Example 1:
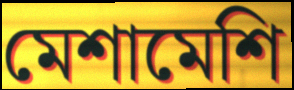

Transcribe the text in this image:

মেশামেশি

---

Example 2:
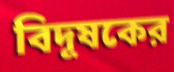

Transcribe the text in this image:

বিদূষকের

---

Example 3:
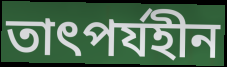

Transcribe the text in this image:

তাৎপর্যহীন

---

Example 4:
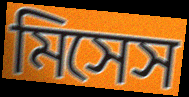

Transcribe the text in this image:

মিসেস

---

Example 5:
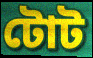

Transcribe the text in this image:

টোট